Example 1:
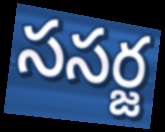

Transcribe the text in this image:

ససర్జ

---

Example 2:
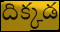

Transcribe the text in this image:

దిక్కడ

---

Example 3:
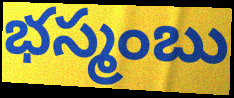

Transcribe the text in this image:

భస్మంబు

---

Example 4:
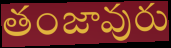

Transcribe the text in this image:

తంజావురు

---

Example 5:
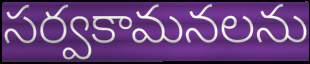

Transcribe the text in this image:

సర్వకామనలను